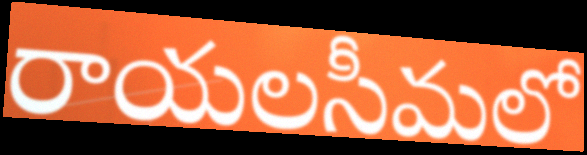
రాయలసీమలో